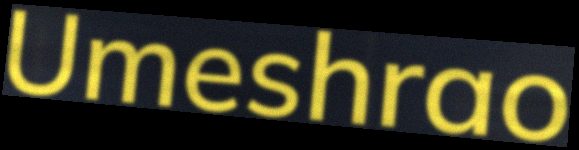
Umeshrao